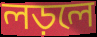
লড়লে